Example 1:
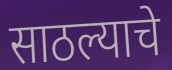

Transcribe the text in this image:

साठल्याचे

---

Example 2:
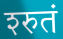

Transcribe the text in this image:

श्रुतं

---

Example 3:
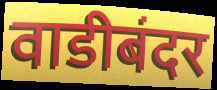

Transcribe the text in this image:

वाडीबंदर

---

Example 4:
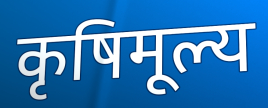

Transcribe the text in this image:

कृषिमूल्य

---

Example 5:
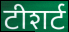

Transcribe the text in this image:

टीशर्ट